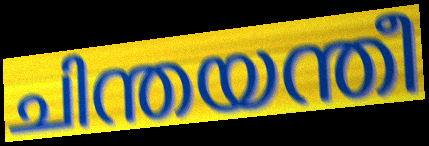
ചിന്തയന്തീ